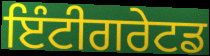
ਇੰਟੀਗਰੇਟਡ